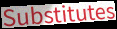
Substitutes